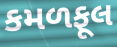
કમળફૂલ